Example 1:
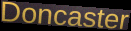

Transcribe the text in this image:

Doncaster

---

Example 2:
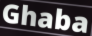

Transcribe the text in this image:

Ghaba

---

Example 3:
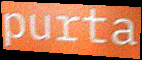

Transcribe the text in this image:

purta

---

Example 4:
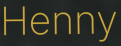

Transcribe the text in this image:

Henny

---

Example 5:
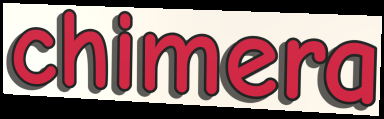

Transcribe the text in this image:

chimera